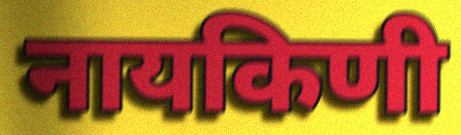
नायकिणी